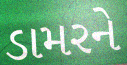
ડામરને